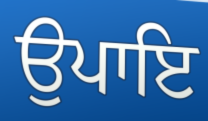
ਉਪਾਇ